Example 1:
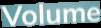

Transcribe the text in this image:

Volume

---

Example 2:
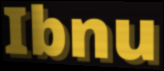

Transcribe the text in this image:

Ibnu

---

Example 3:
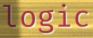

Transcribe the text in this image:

logic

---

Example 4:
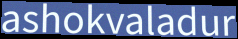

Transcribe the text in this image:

ashokvaladur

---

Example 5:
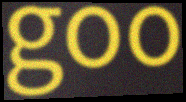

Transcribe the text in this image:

goo